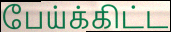
பேய்க்கிட்ட